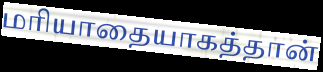
மரியாதையாகத்தான்